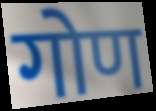
गोण